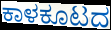
ಕಾಳಕೂಟದ